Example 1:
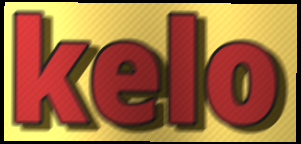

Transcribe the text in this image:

kelo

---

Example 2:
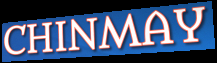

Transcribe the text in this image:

CHINMAY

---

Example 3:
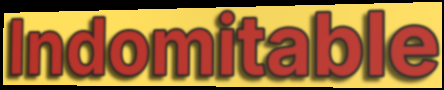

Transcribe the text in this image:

Indomitable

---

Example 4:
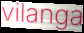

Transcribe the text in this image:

vilanga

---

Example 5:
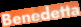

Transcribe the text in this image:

Benedetta